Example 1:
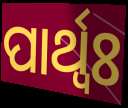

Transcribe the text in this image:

ପାର୍ଥ୍ବଃ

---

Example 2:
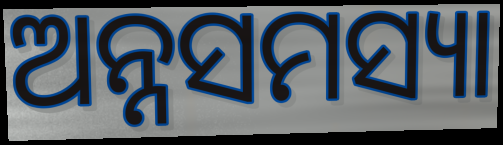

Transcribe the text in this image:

ଅନ୍ନସମସ୍ୟା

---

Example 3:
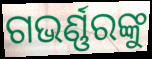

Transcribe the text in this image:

ଗଭର୍ଣ୍ଣରଙ୍କୁ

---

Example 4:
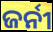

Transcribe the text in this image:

ଜର୍ନୀ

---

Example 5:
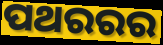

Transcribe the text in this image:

ପଥରରର